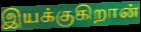
இயக்குகிறான்